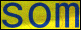
som